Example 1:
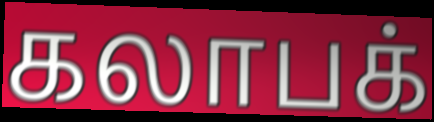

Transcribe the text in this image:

கலாபக்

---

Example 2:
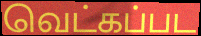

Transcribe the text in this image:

வெட்கப்பட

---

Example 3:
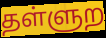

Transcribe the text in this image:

தள்ளுற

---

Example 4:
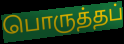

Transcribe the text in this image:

பொருத்தப்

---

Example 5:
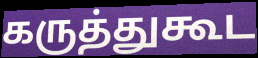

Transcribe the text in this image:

கருத்துகூட